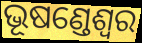
ଭୂଷଣ୍ଡେଶ୍ଵର